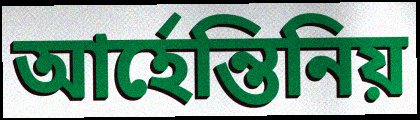
আর্হেন্তিনিয়